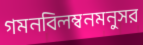
গমনবিলম্বনমনুসর